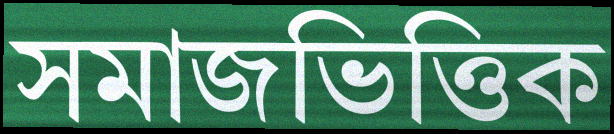
সমাজভিত্তিক